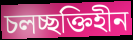
চলচ্ছক্তিহীন